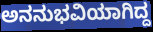
ಅನನುಭವಿಯಾಗಿದ್ದ